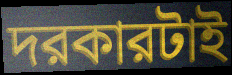
দরকারটাই